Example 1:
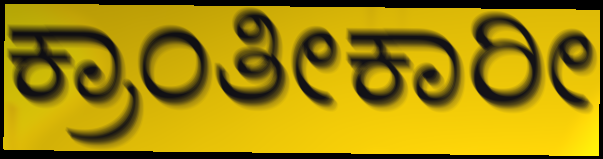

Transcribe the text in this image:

ಕ್ರಾಂತೀಕಾರೀ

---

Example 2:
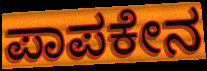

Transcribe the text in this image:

ಪಾಪಕೇನ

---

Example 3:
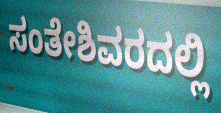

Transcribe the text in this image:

ಸಂತೇಶಿವರದಲ್ಲಿ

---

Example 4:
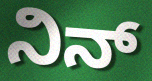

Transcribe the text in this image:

ನಿನ್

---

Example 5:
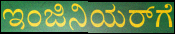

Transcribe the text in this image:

ಇಂಜಿನಿಯರ್‌ಗೆ